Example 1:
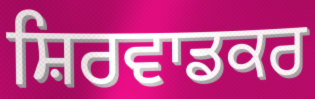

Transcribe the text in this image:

ਸ਼ਿਰਵਾਡਕਰ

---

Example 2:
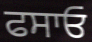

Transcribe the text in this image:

ਫਸਾਓ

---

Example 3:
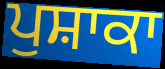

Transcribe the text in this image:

ਪੁਸ਼ਾਕਾ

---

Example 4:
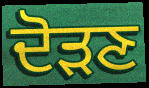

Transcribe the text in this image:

ਦੋੜਣ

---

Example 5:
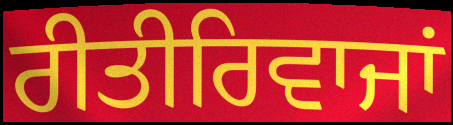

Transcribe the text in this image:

ਰੀਤੀਰਿਵਾਜਾਂ